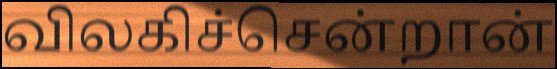
விலகிச்சென்றான்